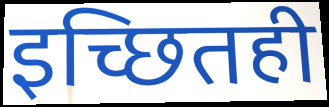
इच्छितही